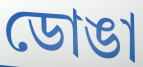
ডোঙা